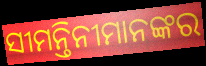
ସୀମନ୍ତିନୀମାନଙ୍କର